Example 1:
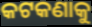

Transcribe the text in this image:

କଟକଣାକୁ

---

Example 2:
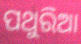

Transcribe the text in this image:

ପଥୁରିଆ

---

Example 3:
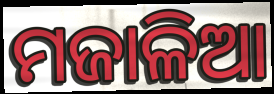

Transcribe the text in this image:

ମଜାଳିଆ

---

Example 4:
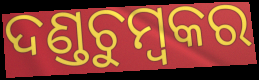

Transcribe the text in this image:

ଦଣ୍ଡଚୁମ୍ବକର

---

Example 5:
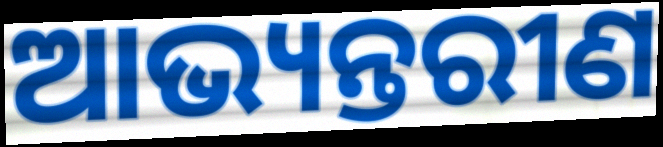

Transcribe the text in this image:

ଆଭ୍ୟନ୍ତରୀଣ